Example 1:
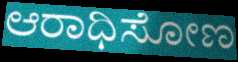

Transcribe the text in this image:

ಆರಾಧಿಸೋಣ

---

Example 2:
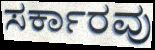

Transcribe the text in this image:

ಸರ್ಕಾರವು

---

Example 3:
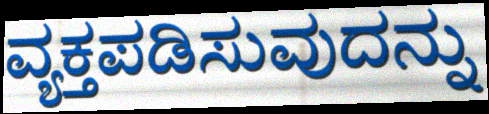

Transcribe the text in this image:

ವ್ಯಕ್ತಪಡಿಸುವುದನ್ನು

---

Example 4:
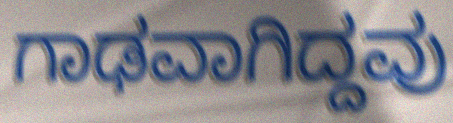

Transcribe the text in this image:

ಗಾಢವಾಗಿದ್ದವು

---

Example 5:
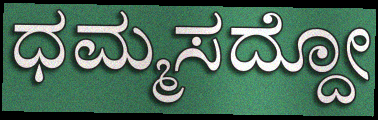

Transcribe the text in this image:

ಧಮ್ಮಸದ್ದೋ